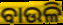
ବାଉଳି